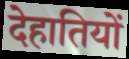
देहातियों